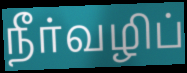
நீர்வழிப்